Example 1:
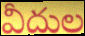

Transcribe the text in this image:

వీదుల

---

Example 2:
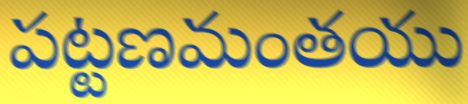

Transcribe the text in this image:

పట్టణమంతయు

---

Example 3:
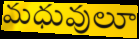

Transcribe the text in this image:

మధువులూ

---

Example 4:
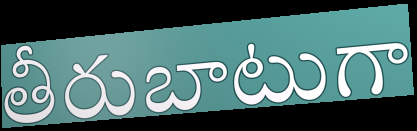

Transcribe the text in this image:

తీరుబాటుగా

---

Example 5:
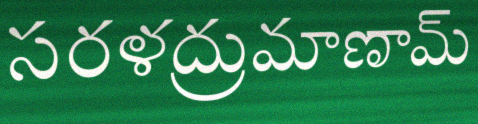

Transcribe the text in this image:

సరళద్రుమాణామ్